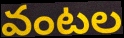
వంటల